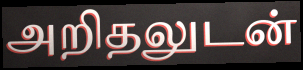
அறிதலுடன்